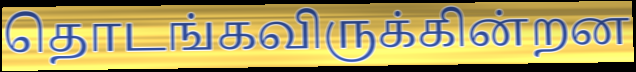
தொடங்கவிருக்கின்றன